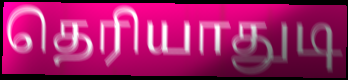
தெரியாதுடி